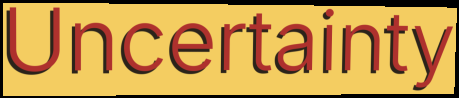
Uncertainty